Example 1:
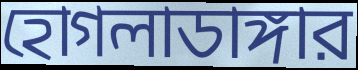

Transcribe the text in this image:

হোগলাডাঙ্গার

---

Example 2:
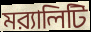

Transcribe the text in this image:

মর‍্যালিটি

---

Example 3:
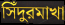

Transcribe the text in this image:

সিঁদুরমাখা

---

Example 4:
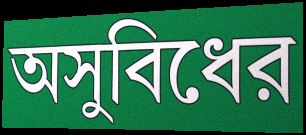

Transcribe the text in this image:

অসুবিধের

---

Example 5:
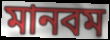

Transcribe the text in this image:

মানবম